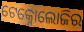
ଟେକ୍ନୋଲୋଜିର